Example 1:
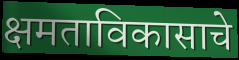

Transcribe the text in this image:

क्षमताविकासाचे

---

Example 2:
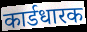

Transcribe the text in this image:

कार्डधारक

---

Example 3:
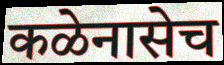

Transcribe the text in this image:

कळेनासेच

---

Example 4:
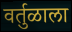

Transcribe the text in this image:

वर्तुळाला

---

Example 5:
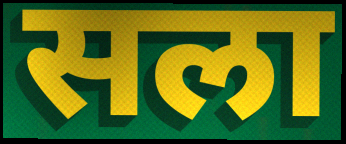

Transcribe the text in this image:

सला